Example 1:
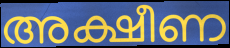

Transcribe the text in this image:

അക്ഷീണ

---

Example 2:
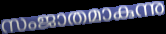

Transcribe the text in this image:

സംജാതമാകുന്നു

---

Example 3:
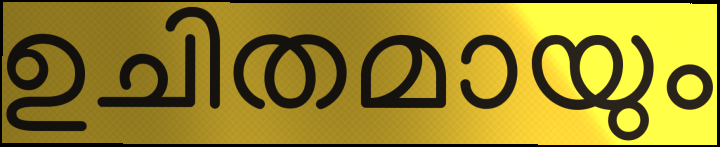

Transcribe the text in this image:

ഉചിതമായും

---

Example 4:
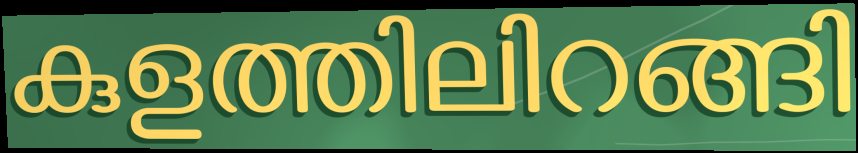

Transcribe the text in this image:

കുളത്തിലിറങ്ങി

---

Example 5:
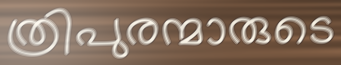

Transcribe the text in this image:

ത്രിപുരന്മാരുടെ